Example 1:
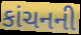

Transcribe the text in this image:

કાંચનની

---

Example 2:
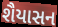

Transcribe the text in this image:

શૈયાસન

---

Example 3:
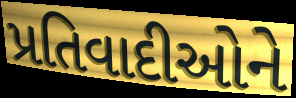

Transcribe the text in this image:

પ્રતિવાદીઓને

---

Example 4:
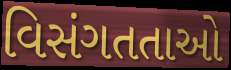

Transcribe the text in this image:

વિસંગતતાઓ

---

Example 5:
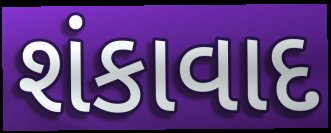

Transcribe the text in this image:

શંકાવાદ